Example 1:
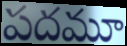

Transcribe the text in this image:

పదమూ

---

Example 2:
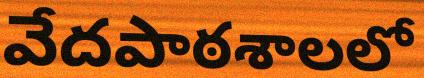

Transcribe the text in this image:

వేదపాఠశాలలో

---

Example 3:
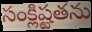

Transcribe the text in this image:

సంక్లిష్టతను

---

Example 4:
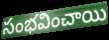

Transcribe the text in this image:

సంభవించాయి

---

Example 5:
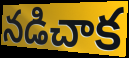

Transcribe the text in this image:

నడిచాక